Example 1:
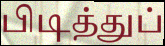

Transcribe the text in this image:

பிடித்துப்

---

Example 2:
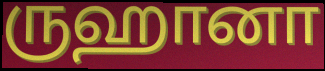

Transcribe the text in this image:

ருஹானா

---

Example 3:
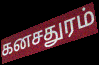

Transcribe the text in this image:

கனசதுரம்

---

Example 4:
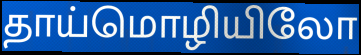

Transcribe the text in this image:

தாய்மொழியிலோ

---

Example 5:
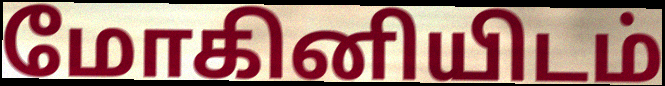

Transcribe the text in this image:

மோகினியிடம்